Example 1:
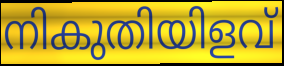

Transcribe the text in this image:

നികുതിയിളവ്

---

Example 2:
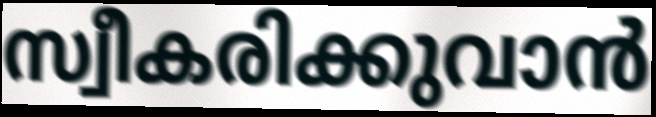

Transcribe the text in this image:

സ്വീകരിക്കുവാൻ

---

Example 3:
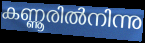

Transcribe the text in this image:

കണ്ണൂരിൽനിന്നു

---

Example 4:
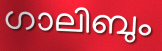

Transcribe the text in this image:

ഗാലിബും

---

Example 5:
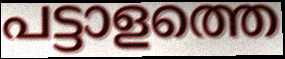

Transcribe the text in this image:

പട്ടാളത്തെ